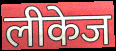
लीकेज